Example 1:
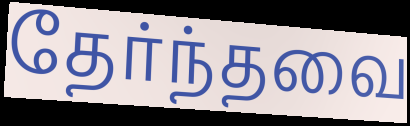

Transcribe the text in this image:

தேர்ந்தவை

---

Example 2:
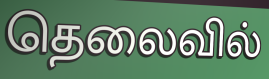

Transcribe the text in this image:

தெலைவில்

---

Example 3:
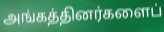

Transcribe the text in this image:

அங்கத்தினர்களைப்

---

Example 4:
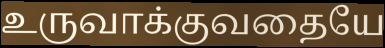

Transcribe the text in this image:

உருவாக்குவதையே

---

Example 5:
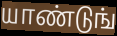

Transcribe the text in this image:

யாண்டுங்